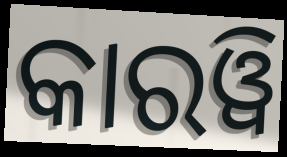
କାରୱି